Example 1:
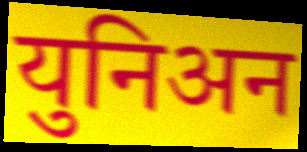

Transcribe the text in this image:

युनिअन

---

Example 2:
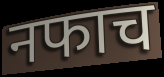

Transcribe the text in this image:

नफाच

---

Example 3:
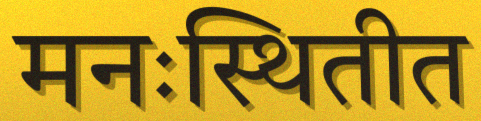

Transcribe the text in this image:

मनःस्थितीत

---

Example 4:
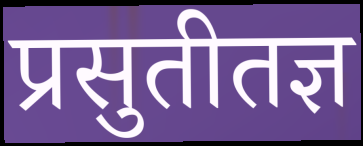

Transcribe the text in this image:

प्रसुतीतज्ञ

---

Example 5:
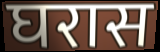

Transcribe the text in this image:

घरास